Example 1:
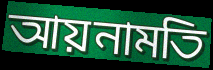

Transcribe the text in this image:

আয়নামতি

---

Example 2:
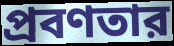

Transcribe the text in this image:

প্রবণতার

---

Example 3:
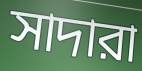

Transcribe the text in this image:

সাদারা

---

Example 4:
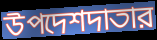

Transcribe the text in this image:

উপদেশদাতার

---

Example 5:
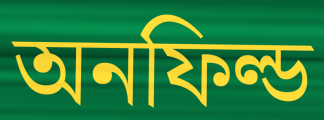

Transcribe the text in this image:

অনফিল্ড